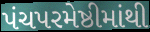
પંચપરમેષ્ઠીમાંથી